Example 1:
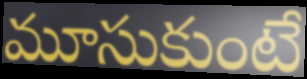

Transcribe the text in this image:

మూసుకుంటే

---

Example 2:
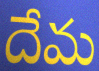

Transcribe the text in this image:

దేమ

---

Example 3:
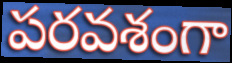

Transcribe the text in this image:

పరవశంగా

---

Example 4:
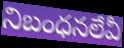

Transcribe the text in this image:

నిబంధనలేవీ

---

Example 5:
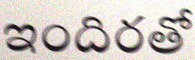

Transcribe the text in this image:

ఇందిరతో